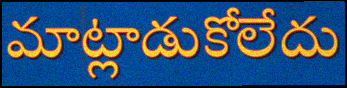
మాట్లాడుకోలేదు